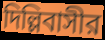
দিল্লিবাসীর